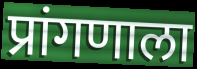
प्रांगणाला